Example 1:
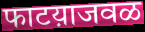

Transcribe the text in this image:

फाटय़ाजवळ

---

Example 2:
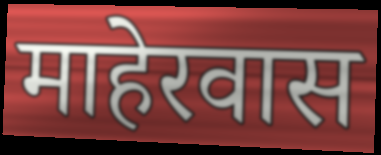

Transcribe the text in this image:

माहेरवास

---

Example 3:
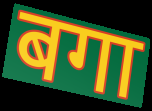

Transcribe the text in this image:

बगा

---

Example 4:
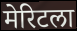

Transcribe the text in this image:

मेरिटला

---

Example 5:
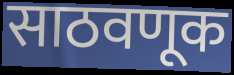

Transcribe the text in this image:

साठवणूक